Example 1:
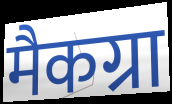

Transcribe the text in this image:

मैकग्रा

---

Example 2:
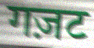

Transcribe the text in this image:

गज़ट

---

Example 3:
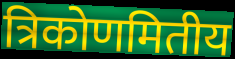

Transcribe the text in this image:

त्रिकोणमितीय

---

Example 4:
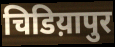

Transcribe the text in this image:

चिडिय़ापुर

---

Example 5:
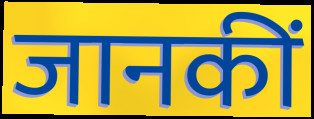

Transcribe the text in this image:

जानकीं